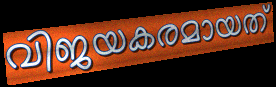
വിജയകരമായത്